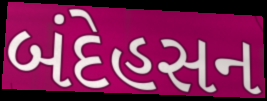
બંદેહસન